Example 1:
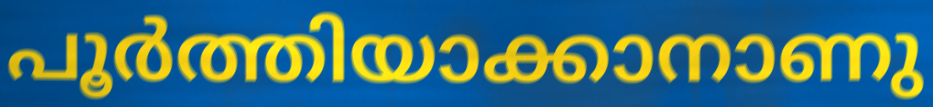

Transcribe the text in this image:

പൂർത്തിയാക്കാനാണു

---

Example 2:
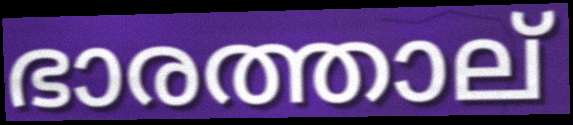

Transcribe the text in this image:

ഭാരത്താല്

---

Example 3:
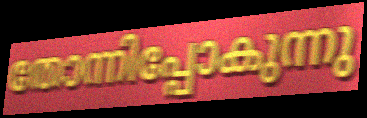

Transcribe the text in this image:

തോന്നിപ്പോകുന്നു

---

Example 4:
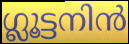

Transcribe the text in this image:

ഗ്ലൂട്ടനിൻ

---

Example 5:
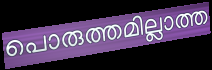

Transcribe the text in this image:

പൊരുത്തമില്ലാത്ത